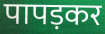
पापड़कर